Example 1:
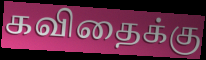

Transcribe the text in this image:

கவிதைக்கு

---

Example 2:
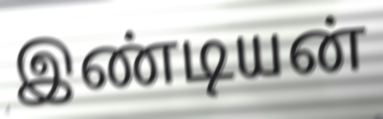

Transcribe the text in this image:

இண்டியன்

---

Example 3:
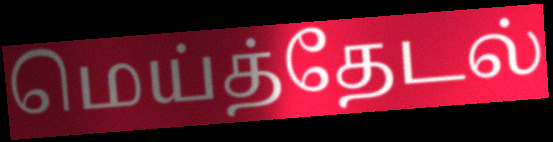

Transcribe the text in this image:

மெய்த்தேடல்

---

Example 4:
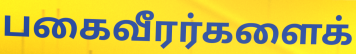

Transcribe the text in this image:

பகைவீரர்களைக்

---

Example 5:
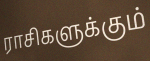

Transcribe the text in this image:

ராசிகளுக்கும்